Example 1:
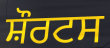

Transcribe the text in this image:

ਸ਼ੌਰਟਸ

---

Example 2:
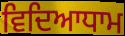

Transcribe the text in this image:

ਵਿਦਿਆਧਾਮ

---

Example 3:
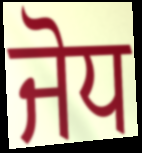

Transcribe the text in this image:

ਜੋਧ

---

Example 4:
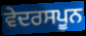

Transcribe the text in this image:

ਵੇਦਰਸਪੂਨ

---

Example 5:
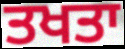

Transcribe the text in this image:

ਤਖਤਾ